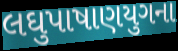
લઘુપાષાણયુગના